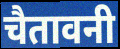
चैतावनी